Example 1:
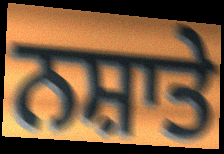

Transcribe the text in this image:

ਨਸ਼ਾਤੇ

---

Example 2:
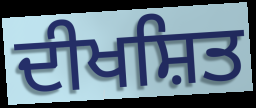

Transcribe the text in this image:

ਦੀਖਸ਼ਿਤ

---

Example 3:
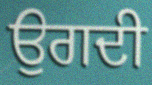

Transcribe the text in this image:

ਉਗਦੀ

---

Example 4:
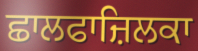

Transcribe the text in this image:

ਛਾਲਫਾਜ਼ਿਲਕਾ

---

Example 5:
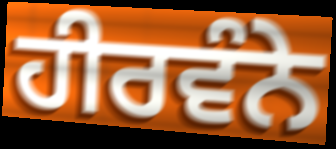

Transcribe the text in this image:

ਹੀਰਵੰਨੇ